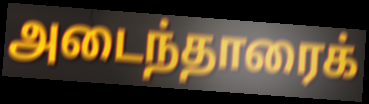
அடைந்தாரைக்